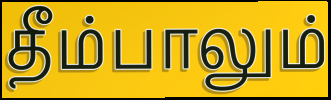
தீம்பாலும்